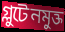
গ্লুটেনমুক্ত